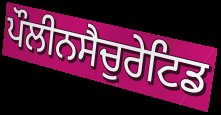
ਪੌਲੀਨਸੈਚੁਰੇਟਿਡ